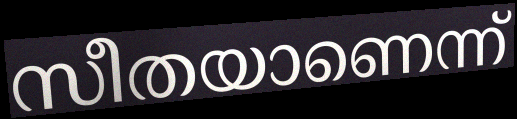
സീതയാണെന്ന്